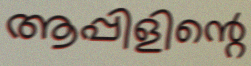
ആപ്പിളിന്റെ